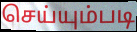
செய்யும்படி